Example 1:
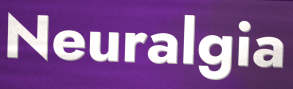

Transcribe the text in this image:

Neuralgia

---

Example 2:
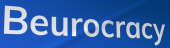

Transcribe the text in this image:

Beurocracy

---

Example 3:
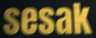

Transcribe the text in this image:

sesak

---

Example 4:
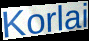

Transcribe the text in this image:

Korlai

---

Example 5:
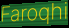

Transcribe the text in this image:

Faroqhi